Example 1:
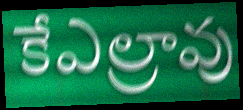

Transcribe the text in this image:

కేఎల్రావు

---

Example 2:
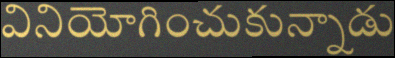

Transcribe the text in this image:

వినియోగించుకున్నాడు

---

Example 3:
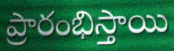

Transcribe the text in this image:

ప్రారంభిస్తాయి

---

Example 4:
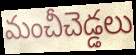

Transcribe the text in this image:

మంచీచెడ్డలు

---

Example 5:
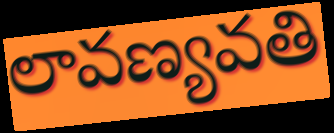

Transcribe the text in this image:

లావణ్యవతి